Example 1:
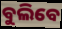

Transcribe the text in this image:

ବୁଲିବେ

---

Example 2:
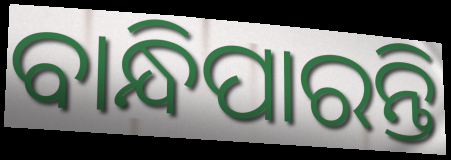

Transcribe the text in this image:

ବାନ୍ଧିପାରନ୍ତି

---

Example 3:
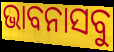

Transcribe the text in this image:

ଭାବନାସବୁ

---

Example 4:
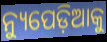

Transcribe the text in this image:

ନ୍ୟୁପେଡ଼ିଆକୁ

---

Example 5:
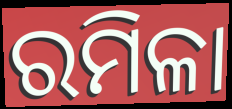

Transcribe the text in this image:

ରମିଳା